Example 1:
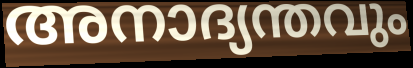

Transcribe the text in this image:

അനാദ്യന്തവും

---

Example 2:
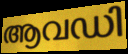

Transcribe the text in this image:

ആവഡി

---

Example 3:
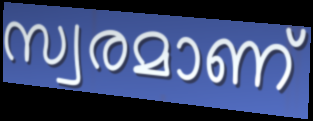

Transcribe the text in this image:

സ്വരമാണ്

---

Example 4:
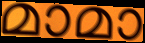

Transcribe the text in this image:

മാമാ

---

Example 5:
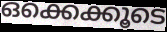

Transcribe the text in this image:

ഒക്കെക്കൂടെ